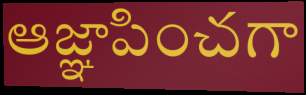
ఆజ్ఞాపించగా